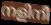
നളിനീ